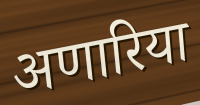
अणारिया